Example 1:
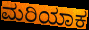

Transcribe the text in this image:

ಮರಿಯಾಕ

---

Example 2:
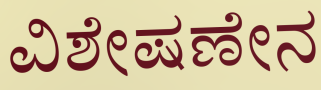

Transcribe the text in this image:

ವಿಶೇಷಣೇನ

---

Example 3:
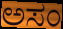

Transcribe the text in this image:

ಅಸಂ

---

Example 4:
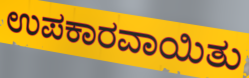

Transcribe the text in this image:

ಉಪಕಾರವಾಯಿತು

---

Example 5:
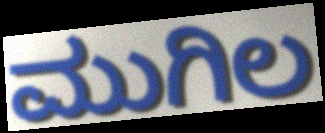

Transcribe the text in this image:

ಮುಗಿಲ